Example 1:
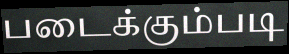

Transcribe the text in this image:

படைக்கும்படி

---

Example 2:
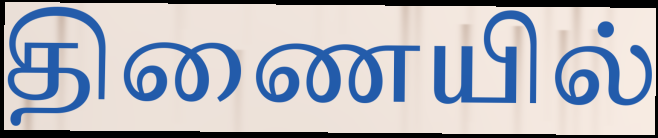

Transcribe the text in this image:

திணையில்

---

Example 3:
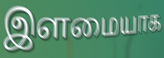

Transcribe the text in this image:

இளமையாக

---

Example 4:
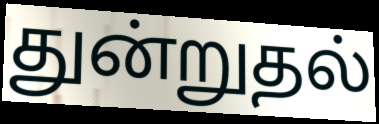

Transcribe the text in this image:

துன்றுதல்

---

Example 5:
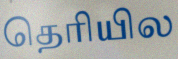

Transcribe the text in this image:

தெரியில